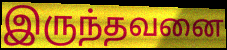
இருந்தவனை